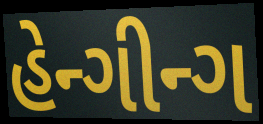
હેન્ગીન્ગ